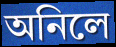
অনিলে